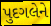
પુદગલેને